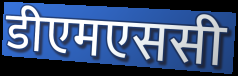
डीएमएससी